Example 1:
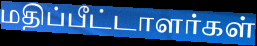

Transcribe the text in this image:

மதிப்பீட்டாளர்கள்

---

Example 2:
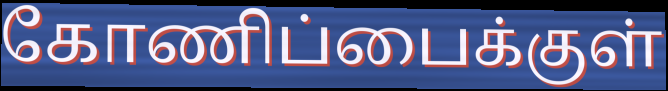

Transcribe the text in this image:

கோணிப்பைக்குள்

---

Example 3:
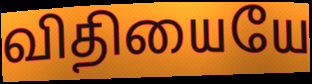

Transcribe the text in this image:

விதியையே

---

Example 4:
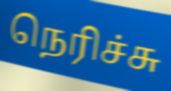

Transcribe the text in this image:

நெரிச்சு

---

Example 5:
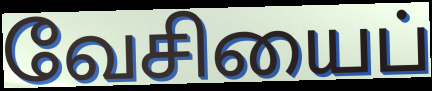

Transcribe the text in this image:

வேசியைப்